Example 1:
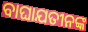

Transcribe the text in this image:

ବାଘାଯତୀନଙ୍କ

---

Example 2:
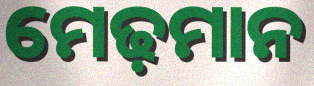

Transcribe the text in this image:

ମେଢ଼ମାନ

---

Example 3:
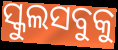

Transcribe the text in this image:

ସ୍କୁଲସବୁକୁ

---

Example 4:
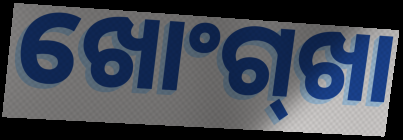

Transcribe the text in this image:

ଖୋଂଗ୍‍ଖା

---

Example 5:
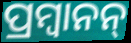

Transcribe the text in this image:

ପ୍ରମ୍ବାନନ୍